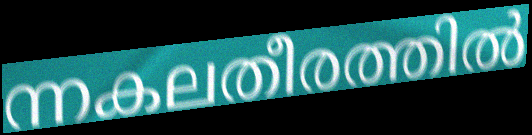
ന്നകലതീരത്തിൽ